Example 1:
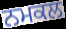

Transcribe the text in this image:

ਨਮਕਲ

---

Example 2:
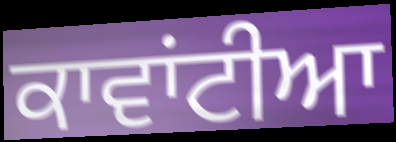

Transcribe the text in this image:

ਕਾਵਾਂਟੀਆ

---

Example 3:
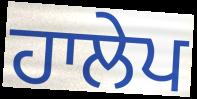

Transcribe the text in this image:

ਹਾਲੇਪ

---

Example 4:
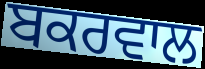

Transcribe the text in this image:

ਬਕਰਵਾਲ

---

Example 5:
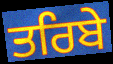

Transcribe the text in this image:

ਤਰਿਬੇ